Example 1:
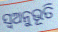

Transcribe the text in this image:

ସ୍ୱଅନୁଭୂତି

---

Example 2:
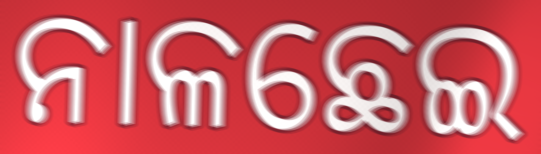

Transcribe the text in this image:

ନାଳଛେଇ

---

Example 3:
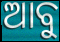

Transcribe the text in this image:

ଆବୁ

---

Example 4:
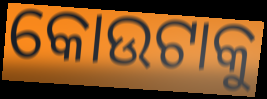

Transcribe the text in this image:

କୋଉଟାକୁ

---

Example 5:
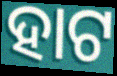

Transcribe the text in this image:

ହାଟ